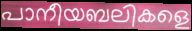
പാനീയബലികളെ